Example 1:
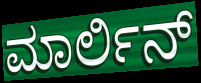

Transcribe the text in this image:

ಮಾರ್ಲಿನ್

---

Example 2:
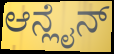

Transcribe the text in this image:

ಆನ್ಲೈನ್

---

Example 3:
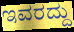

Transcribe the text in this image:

ಇವರದ್ದು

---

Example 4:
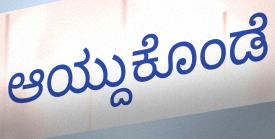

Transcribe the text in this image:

ಆಯ್ದುಕೊಂಡೆ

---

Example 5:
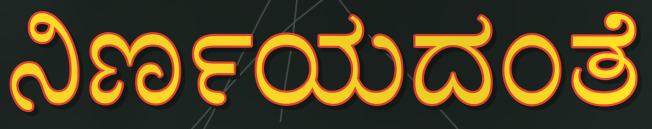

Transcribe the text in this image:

ನಿರ್ಣಯದಂತೆ